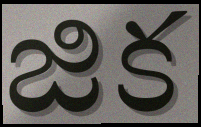
జిక